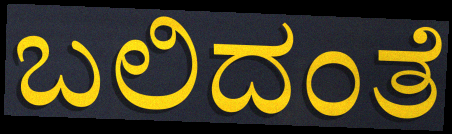
ಬಲಿದಂತೆ